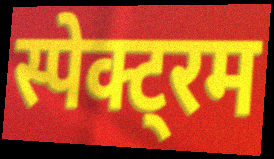
स्पेक्ट्रम